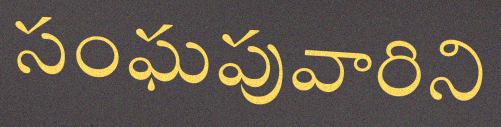
సంఘపువారిని